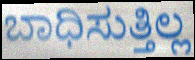
ಬಾಧಿಸುತ್ತಿಲ್ಲ